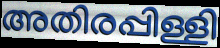
അതിരപ്പിള്ളി